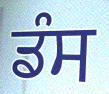
ਡੰਸ